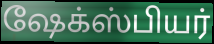
ஷேக்ஸ்பியர்